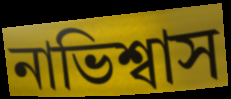
নাভিশ্বাস